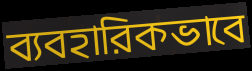
ব্যবহারিকভাবে